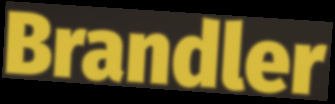
Brandler